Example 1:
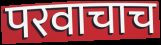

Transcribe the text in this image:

परवाचाच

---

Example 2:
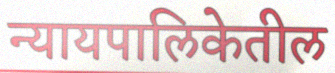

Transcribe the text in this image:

न्यायपालिकेतील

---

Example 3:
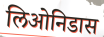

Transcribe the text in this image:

लिओनिडास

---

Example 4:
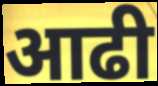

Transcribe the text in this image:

आढी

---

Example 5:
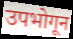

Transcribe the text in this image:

उपभोगून